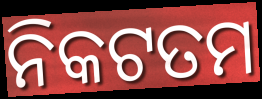
ନିକଟତମ